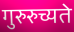
गुरुरुच्यते